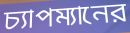
চ্যাপম্যানের